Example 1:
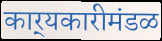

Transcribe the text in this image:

कार्यकारीमंडळ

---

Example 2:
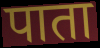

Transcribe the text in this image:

पाता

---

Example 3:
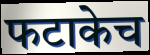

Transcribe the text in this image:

फटाकेच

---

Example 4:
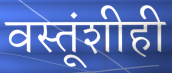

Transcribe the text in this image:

वस्तूंशीही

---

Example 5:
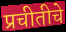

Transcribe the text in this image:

प्रचीतीचे